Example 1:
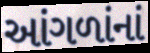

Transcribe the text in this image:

આંગળાંનાં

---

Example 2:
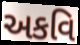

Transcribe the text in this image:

અકવિ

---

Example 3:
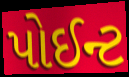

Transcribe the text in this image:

પોઈન્ટ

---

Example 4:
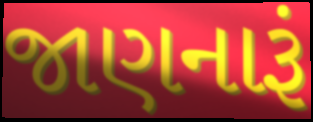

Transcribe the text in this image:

જાણનારૂં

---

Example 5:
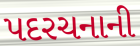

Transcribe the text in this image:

પદરચનાની